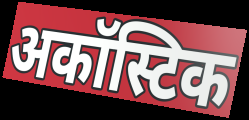
अकॉस्टिक